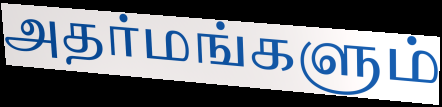
அதர்மங்களும்